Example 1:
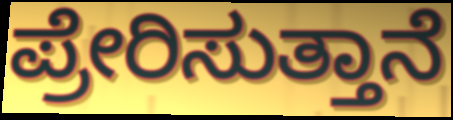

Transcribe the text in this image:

ಪ್ರೇರಿಸುತ್ತಾನೆ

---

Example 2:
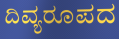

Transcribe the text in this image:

ದಿವ್ಯರೂಪದ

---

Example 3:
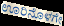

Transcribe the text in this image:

ಊರಿನೊಳಗೇ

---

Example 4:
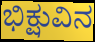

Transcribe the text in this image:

ಭಿಕ್ಷುವಿನ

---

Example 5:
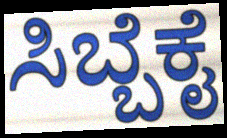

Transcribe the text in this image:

ಸಿಬ್ಬೆಕೈ